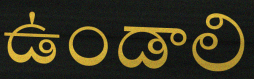
ఉండాలి